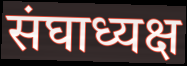
संघाध्यक्ष